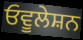
ਓਵੂਲੇਸ਼ਨ